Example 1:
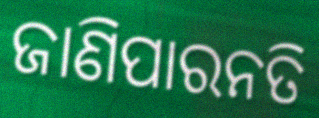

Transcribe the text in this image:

ଜାଣିପାରନତି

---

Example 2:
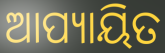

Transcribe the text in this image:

ଆପ୍ଯାୟିତ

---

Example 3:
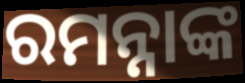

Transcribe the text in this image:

ରମନ୍ନାଙ୍କ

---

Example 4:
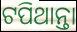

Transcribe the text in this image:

ଟପିଥାନ୍ତା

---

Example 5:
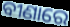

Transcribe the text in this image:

ବୀଣାରେ